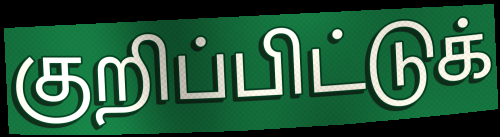
குறிப்பிட்டுக்